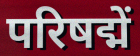
परिषद्में